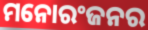
ମନୋରଂଜନର